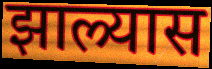
झाल्यास